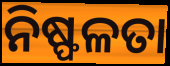
ନିଷ୍ଫଳତା